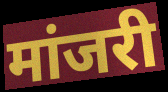
मांजरी